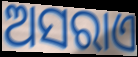
ଅସରାଏ